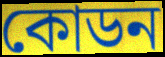
কোডন